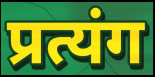
प्रत्यंग